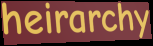
heirarchy